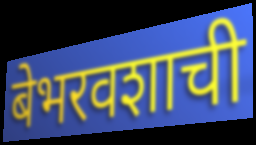
बेभरवशाची